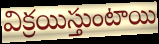
విక్రయిస్తుంటాయి